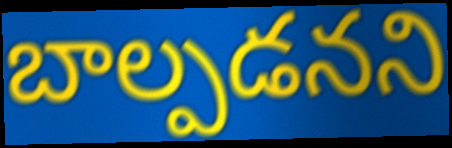
బాల్పడనని